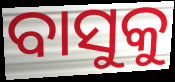
ବାସୁକୁ